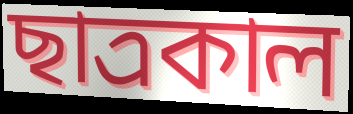
ছাত্রকাল